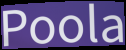
Poola